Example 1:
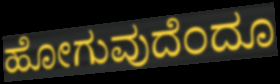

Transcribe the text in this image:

ಹೋಗುವುದೆಂದೂ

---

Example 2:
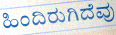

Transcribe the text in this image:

ಹಿಂದಿರುಗಿದೆವು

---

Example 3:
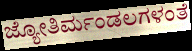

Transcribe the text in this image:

ಜ್ಯೋತಿರ್ಮಂಡಲಗಳಂತೆ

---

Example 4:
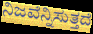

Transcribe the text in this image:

ನಿಜವೆನ್ನಿಸುತ್ತದೆ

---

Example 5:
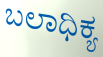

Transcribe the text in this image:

ಬಲಾಧಿಕ್ಯ